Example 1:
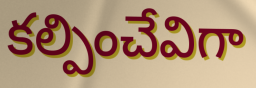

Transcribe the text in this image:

కల్పించేవిగా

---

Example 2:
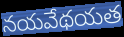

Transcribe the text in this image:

నయవేథయత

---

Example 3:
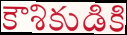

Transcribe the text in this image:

కౌశికుడికి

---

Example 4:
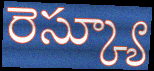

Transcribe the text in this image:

రెస్క్యూ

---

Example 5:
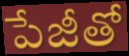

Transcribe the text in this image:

పేజీతో